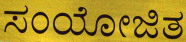
ಸಂಯೋಜಿತ